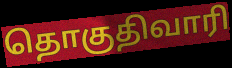
தொகுதிவாரி